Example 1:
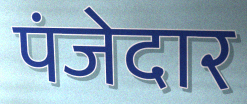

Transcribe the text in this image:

पंजेदार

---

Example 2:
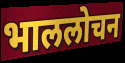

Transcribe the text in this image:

भाललोचन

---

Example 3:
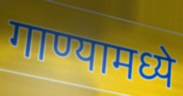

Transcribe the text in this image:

गाण्यामध्ये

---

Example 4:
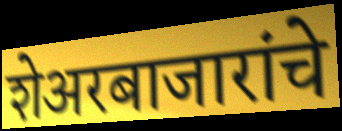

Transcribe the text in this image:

शेअरबाजारांचे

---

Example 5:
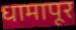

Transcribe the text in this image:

धामापूर